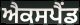
ਐਕਸਪੈਂਡ